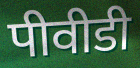
पीवीडी